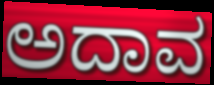
ಅದಾವ